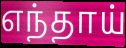
எந்தாய்